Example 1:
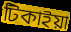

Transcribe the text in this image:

টিকাইয়া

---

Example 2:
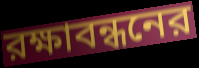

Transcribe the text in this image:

রক্ষাবন্ধনের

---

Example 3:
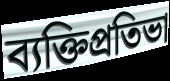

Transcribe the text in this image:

ব্যক্তিপ্রতিভা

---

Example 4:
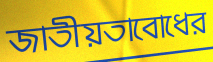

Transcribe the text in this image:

জাতীয়তাবোধের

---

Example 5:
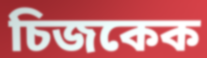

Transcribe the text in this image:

চিজকেক